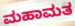
ಮಹಾಮತ